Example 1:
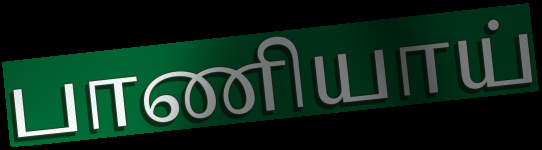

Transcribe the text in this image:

பாணியாய்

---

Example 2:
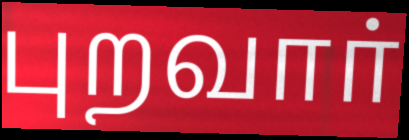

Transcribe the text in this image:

புறவார்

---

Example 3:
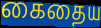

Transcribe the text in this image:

கைதைய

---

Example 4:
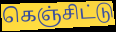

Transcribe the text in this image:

கெஞ்சிட்டு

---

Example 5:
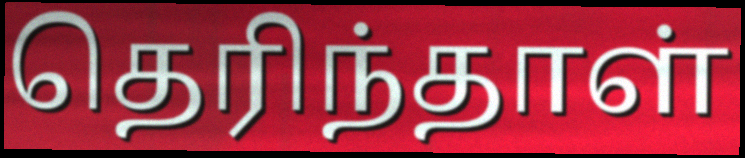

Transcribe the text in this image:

தெரிந்தாள்